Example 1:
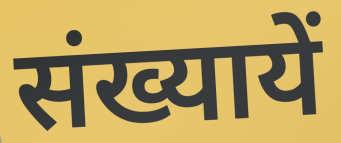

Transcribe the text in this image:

संख्यायें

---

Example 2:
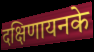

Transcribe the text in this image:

दक्षिणायनके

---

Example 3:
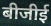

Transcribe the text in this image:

बीजीई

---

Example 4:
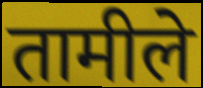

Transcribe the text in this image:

तामीले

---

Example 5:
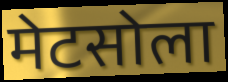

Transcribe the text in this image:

मेटसोला